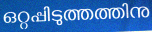
ഒറ്റപ്പിടുത്തത്തിനു